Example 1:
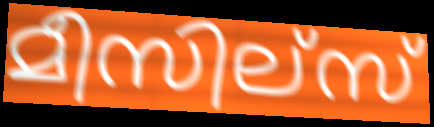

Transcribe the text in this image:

മീസില്സ്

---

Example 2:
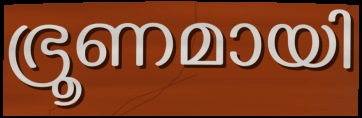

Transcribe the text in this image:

ഭ്രൂണമായി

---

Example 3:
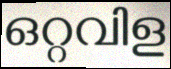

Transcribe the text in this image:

ഒറ്റവിള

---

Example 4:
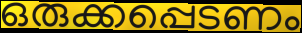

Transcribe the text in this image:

ഒരുക്കപ്പെടണം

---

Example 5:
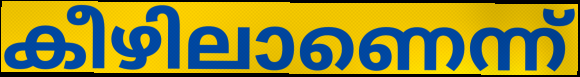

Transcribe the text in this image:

കീഴിലാണെന്ന്